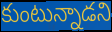
కుంటున్నాడని